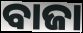
ବାଜା